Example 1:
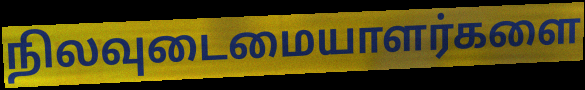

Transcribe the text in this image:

நிலவுடைமையாளர்களை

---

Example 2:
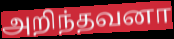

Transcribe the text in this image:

அறிந்தவனா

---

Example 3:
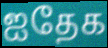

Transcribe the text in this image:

ஐதேக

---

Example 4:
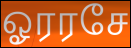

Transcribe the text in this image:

ஓரரசே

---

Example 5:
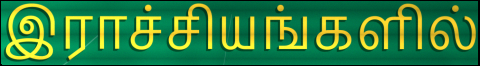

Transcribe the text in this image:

இராச்சியங்களில்